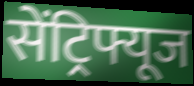
सेंट्रिफ्यूज